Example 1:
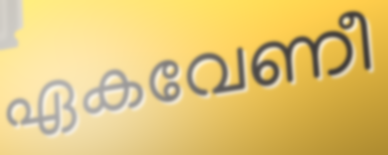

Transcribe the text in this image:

ഏകവേണീ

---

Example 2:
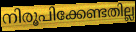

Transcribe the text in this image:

നിരൂപിക്കേണ്ടതില്ല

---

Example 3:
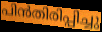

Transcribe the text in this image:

പിൻതിരിപ്പിച്ചു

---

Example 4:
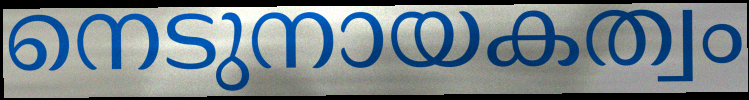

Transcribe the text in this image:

നെടുനായകത്വം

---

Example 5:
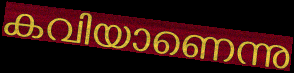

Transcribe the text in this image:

കവിയാണെന്നു